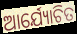
ଆର୍ଯ୍ୟୋଚିତ